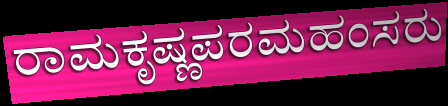
ರಾಮಕೃಷ್ಣಪರಮಹಂಸರು